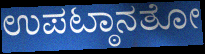
ಉಪಟ್ಠಾನತೋ